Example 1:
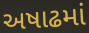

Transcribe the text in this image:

અષાઢમાં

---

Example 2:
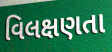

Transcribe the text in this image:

વિલક્ષણતા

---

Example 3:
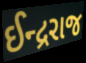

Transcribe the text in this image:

ઈન્દ્રરાજ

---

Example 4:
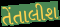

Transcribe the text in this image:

તેંતાલીશ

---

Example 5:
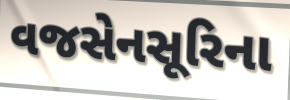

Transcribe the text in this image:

વજસેનસૂરિના